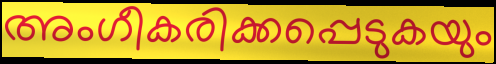
അംഗീകരിക്കപ്പെടുകയും